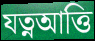
যত্নআত্তি